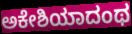
ಅಕೇಶಿಯಾದಂಥ